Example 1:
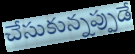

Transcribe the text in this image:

చేసుకున్నప్పుడే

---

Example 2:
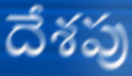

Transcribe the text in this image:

దేశపు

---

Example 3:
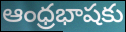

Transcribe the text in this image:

ఆంధ్రభాషకు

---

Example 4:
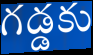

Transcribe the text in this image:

గడ్డకు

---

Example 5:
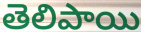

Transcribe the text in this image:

తెలిపాయి